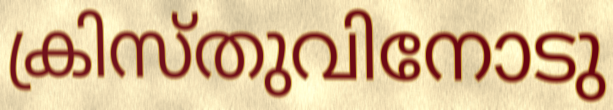
ക്രിസ്തുവിനോടു